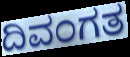
ದಿವಂಗತ